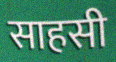
साहसी